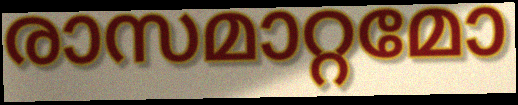
രാസമാറ്റമോ